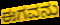
ಈಗವನು